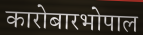
कारोबारभोपाल